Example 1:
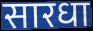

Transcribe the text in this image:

सारधा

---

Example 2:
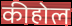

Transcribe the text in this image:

कीहोल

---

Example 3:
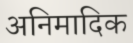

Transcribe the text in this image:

अनिमादिक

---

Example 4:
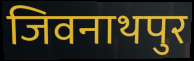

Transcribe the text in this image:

जिवनाथपुर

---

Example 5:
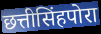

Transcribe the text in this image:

छत्तीसिंहपोरा